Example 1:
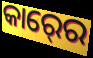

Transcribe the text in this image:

କାର୍‍ରେ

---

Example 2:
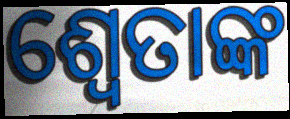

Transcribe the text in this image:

ଶ୍ଵେତାଙ୍କ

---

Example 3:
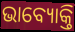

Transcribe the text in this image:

ଭାବ୍ୟୋକ୍ତି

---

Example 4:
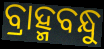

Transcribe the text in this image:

ବ୍ରାହ୍ମବନ୍ଧୁ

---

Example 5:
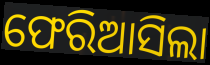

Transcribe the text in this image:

ଫେରିଆସିଲା